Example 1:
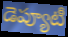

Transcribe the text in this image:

డెప్యూటీ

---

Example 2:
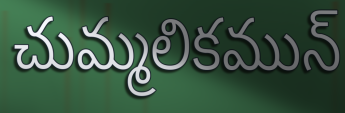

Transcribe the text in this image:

చుమ్మలికమున్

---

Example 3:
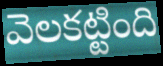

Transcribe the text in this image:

వెలకట్టింది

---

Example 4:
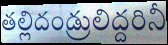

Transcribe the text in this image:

తల్లిదండ్రులిద్దరినీ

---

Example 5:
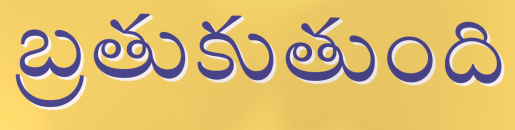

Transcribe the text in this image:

బ్రతుకుతుంది